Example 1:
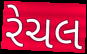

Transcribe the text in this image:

રેચલ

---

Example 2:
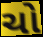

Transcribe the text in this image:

ચો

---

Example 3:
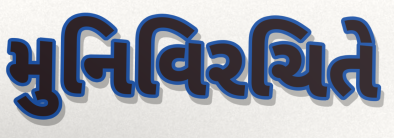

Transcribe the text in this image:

મુનિવિરચિતે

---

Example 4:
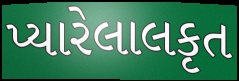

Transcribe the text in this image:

પ્યારેલાલકૃત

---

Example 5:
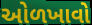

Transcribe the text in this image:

ઓળખાવો